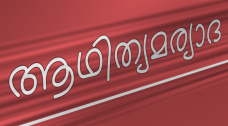
ആഥിത്യമര്യാദ